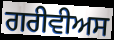
ਗਰੀਵੀਅਸ